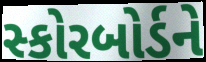
સ્કોરબોર્ડને